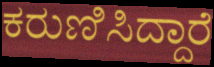
ಕರುಣಿಸಿದ್ದಾರೆ